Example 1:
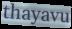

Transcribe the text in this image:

thayavu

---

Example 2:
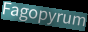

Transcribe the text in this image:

Fagopyrum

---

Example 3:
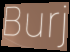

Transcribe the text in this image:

Burj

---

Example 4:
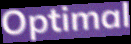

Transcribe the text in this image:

Optimal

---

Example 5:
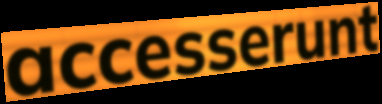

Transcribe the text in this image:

accesserunt